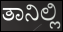
ತಾನಿಲ್ಲಿ